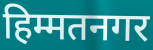
हिम्मतनगर